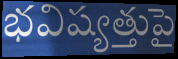
భవిష్యత్తుపై